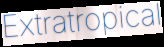
Extratropical